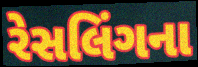
રેસલિંગના